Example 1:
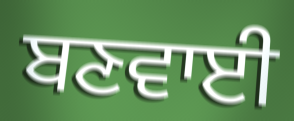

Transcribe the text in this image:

ਬਣਵਾਈ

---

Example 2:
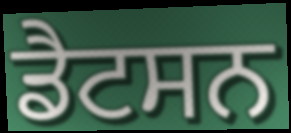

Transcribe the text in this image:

ਡੈਟਸਨ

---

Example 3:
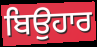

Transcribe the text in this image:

ਬਿਉਹਾਰ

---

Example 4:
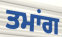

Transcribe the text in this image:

ਤਮਾਂਗ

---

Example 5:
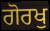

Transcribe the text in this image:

ਗੋਰਖੁ